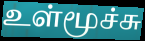
உள்மூச்சு